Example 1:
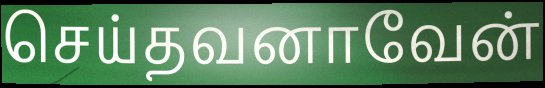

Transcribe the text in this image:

செய்தவனாவேன்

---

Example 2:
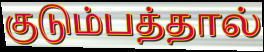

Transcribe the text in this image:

குடும்பத்தால்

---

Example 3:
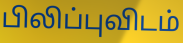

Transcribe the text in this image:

பிலிப்புவிடம்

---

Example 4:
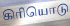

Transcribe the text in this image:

கிரியொடு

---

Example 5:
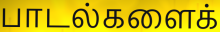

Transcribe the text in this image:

பாடல்களைக்